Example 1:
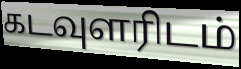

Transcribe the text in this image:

கடவுளரிடம்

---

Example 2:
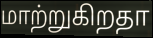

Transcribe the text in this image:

மாற்றுகிறதா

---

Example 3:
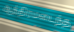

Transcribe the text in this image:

ஆத்திரமடைந்த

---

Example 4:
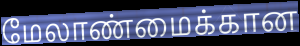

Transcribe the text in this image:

மேலாண்மைக்கான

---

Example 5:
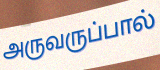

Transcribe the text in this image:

அருவருப்பால்